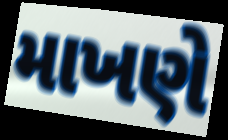
માખણે